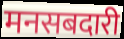
मनसबदारी